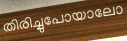
തിരിച്ചുപോയാലോ